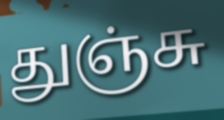
துஞ்சு